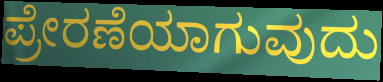
ಪ್ರೇರಣೆಯಾಗುವುದು